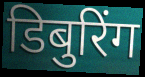
डिबुरिंग